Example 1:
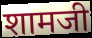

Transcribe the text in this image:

शामजी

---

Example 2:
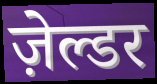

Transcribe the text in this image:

ज़ेल्डर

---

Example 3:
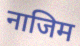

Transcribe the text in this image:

नाजिम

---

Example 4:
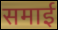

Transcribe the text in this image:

समाई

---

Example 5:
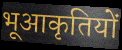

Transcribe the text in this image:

भूआकृतियों